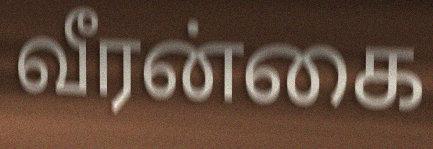
வீரன்கை